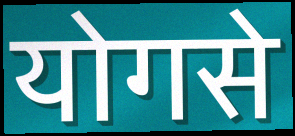
योगसे